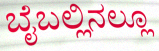
ಬೈಬಲ್ಲಿನಲ್ಲೂ